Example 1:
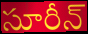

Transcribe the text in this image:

సూరీన్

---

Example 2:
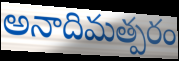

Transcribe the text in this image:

అనాదిమత్పరం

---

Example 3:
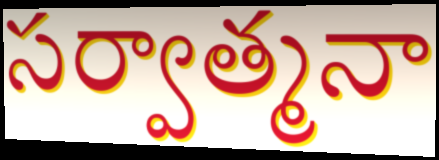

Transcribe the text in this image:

సర్వాత్మనా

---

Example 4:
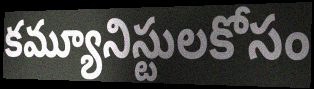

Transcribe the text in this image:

కమ్యూనిస్టులకోసం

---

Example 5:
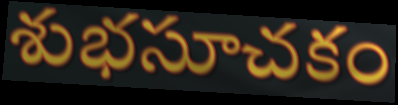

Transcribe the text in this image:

శుభసూచకం